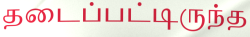
தடைப்பட்டிருந்த